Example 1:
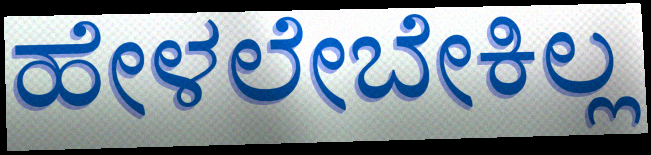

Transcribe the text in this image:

ಹೇಳಲೇಬೇಕಿಲ್ಲ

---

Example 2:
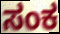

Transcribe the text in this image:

ಸಂಕ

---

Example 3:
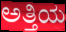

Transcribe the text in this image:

ಅತ್ತಿಯ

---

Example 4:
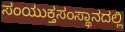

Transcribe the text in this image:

ಸಂಯುಕ್ತಸಂಸ್ಥಾನದಲ್ಲಿ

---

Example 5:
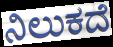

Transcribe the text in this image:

ನಿಲುಕದೆ